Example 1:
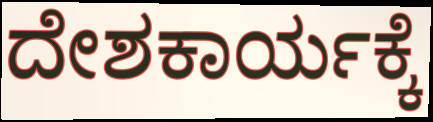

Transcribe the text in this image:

ದೇಶಕಾರ್ಯಕ್ಕೆ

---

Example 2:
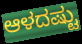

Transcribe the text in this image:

ಆಳದಷ್ಟು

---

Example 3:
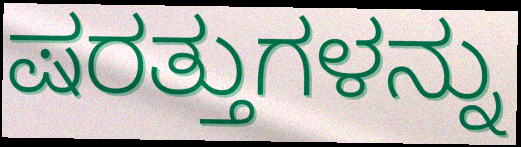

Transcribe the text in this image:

ಷರತ್ತುಗಳನ್ನು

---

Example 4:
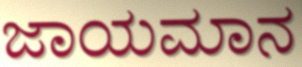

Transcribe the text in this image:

ಜಾಯಮಾನ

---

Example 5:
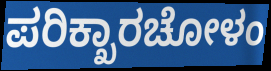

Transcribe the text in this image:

ಪರಿಕ್ಖಾರಚೋಳಂ